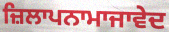
ਜ਼ਿਲਾਪਨਾਮਾਜਾਵੇਦ